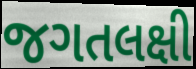
જગતલક્ષી